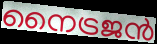
നൈട്രജൻ